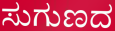
ಸುಗುಣದ